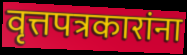
वृत्तपत्रकारांना